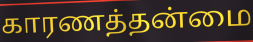
காரணத்தன்மை